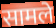
सामले